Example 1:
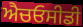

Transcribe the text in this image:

ਐਚਓਸੀਡੀ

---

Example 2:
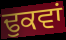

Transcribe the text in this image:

ਢੁਕਵਾਂ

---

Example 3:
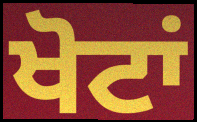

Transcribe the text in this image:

ਖੋਟਾਂ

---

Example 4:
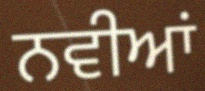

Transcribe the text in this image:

ਨਵੀਆਂ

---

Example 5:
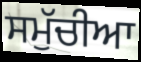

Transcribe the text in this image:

ਸਮੁੱਚੀਆ